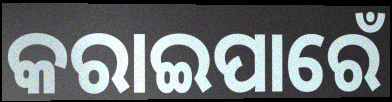
କରାଇପାରେଁ